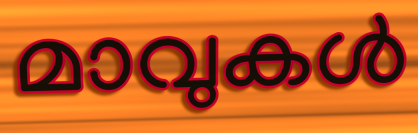
മാവുകൾ